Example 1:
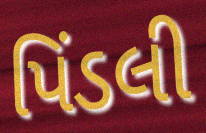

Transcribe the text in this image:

પિંડલી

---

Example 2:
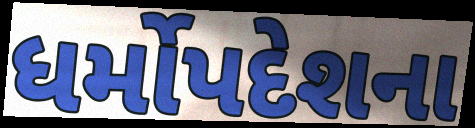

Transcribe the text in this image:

ધર્મોપદેશના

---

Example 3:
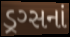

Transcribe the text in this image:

ડ્રગ્સનાં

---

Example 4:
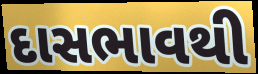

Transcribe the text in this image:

દાસભાવથી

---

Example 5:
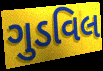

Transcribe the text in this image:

ગુડવિલ